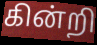
கின்றி